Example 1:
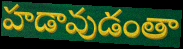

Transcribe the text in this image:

హడావుడంతా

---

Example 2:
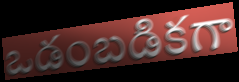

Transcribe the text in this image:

ఒడంబడికగా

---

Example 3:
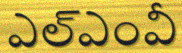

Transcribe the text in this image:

ఎల్ఎంవీ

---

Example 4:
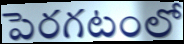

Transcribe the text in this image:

పెరగటంలో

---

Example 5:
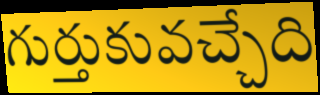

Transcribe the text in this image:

గుర్తుకువచ్చేది